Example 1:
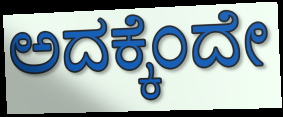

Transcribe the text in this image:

ಅದಕ್ಕೆಂದೇ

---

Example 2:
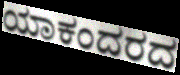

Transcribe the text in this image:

ಯಾಕಂದರದ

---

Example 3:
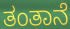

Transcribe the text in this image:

ತಂತಾನೆ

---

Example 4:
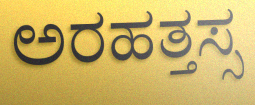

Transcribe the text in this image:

ಅರಹತ್ತಸ್ಸ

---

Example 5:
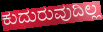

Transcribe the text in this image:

ಕುದುರುವುದಿಲ್ಲ